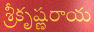
శ్రీకృష్ణరాయ